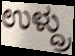
ಉಳ್ದ್ರು